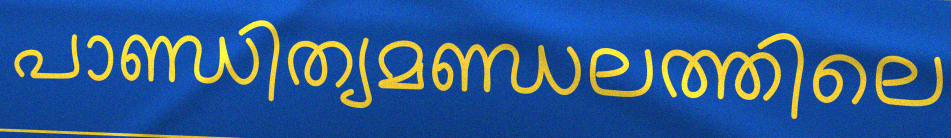
പാണ്ഡിത്യമണ്ഡലത്തിലെ